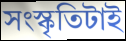
সংস্কৃতিটাই